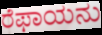
ರೆಫಾಯನು